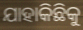
ଯାହାକିଛିକୁ